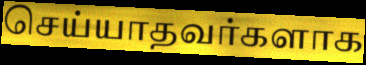
செய்யாதவர்களாக